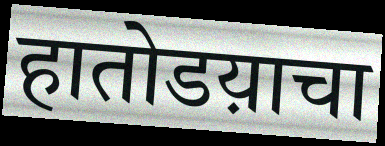
हातोडय़ाचा